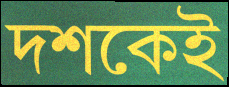
দশকেই